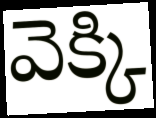
వెక్కి